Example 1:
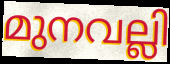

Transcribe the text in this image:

മുനവല്ലി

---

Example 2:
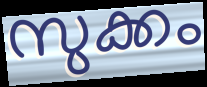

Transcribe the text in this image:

സുക്കം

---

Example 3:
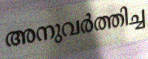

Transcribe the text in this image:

അനുവർത്തിച്ച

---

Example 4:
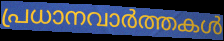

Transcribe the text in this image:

പ്രധാനവാർത്തകൾ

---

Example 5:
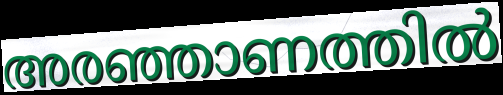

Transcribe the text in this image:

അരഞ്ഞാണത്തിൽ